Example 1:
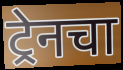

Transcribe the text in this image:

ट्रेनचा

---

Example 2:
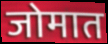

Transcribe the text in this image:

जोमात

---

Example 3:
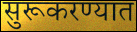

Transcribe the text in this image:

सुरूकरण्यात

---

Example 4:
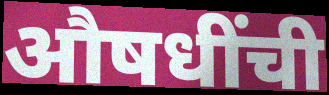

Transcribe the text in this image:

औषधींची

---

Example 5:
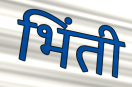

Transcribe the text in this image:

भिंती